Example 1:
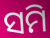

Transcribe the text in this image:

ସମି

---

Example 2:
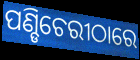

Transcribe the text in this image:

ପଣ୍ଡିଚେରୀଠାରେ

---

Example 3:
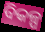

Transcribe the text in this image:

ବିକଳ୍ପ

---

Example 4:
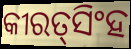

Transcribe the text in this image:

କୀରତ୍‍ସିଂହ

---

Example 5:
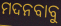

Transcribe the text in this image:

ମଦନବାବୁ